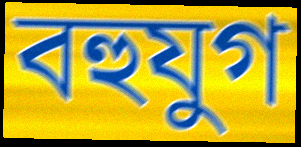
বহুযুগ